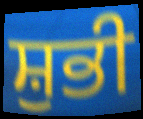
ਸ਼ੁਭੀ